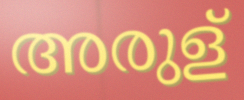
അരുള്